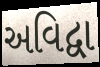
અવિદ્વા